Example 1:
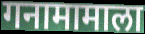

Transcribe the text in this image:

गनामामाला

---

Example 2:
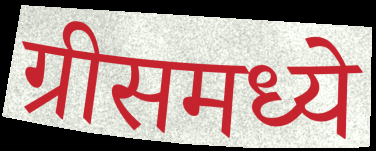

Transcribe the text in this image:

ग्रीसमध्ये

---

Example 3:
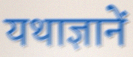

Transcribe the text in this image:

यथाज्ञानें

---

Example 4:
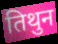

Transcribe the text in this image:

तिथुन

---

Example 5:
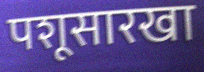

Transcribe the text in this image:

पशूसारखा